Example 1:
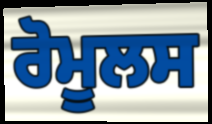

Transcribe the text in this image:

ਰੋਮੂਲਸ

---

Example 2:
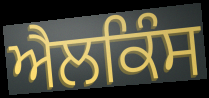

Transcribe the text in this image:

ਐਲਕਿੰਸ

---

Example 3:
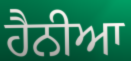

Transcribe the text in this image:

ਹੈਨੀਆ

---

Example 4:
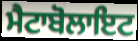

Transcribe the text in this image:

ਮੈਟਾਬੋਲਾਇਟ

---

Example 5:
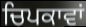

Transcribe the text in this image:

ਚਿਪਕਾਵਾਂ